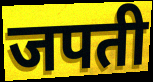
जपती